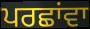
ਪਰਛਾਂਵਾ